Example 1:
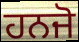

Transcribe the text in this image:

ਹਨਜੋ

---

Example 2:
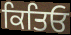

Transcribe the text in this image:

ਕਿਤਿਓ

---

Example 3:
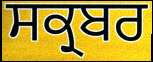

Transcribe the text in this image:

ਸਕ੍ਰਬਰ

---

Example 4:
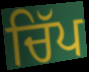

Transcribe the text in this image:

ਚਿੱਪ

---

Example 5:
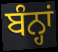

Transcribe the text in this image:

ਬੰਨ੍ਹਾਂ